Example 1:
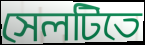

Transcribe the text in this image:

সেলটিতে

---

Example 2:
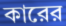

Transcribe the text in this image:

কারের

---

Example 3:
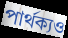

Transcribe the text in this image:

পার্থক্যও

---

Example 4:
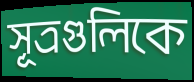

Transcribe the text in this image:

সূত্রগুলিকে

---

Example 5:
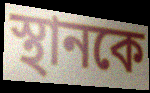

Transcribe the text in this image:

স্থানকে